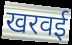
खरवई